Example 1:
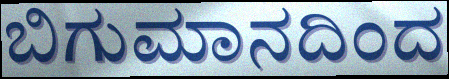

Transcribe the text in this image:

ಬಿಗುಮಾನದಿಂದ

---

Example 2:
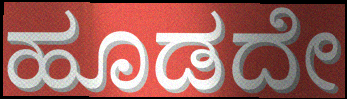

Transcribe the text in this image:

ಹೂಡದೇ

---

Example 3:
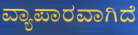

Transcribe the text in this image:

ವ್ಯಾಪಾರವಾಗಿದೆ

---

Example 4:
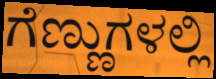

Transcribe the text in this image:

ಗೆಣ್ಣುಗಳಲ್ಲಿ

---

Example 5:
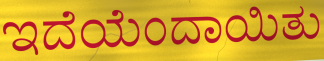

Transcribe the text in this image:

ಇದೆಯೆಂದಾಯಿತು